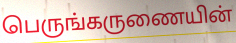
பெருங்கருணையின்